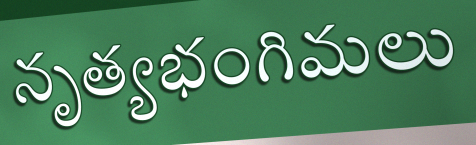
నృత్యభంగిమలు